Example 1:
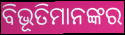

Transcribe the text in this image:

ବିଭୂତିମାନଙ୍କର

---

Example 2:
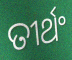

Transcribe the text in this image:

ତୀର୍ଥଂ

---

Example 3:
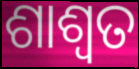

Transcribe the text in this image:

ଶାଶ୍ୱତ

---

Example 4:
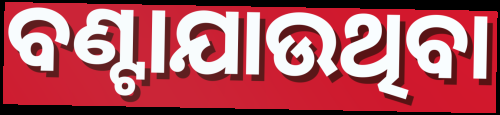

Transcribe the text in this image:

ବଣ୍ଟାଯାଉଥିବା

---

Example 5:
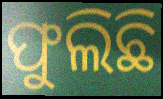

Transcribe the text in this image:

ଫୁଲିଛି